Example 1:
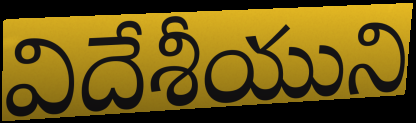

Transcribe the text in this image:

విదేశీయుని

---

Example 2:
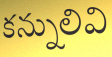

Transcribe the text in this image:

కన్నులివి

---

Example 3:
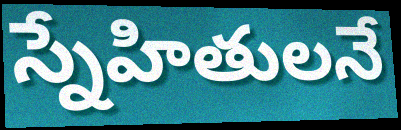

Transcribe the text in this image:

స్నేహితులనే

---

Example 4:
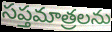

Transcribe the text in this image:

సప్తమాత్రలను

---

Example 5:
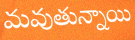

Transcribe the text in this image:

మవుతున్నాయి